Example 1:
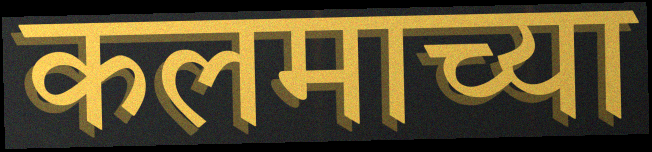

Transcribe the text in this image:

कलमाच्या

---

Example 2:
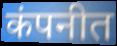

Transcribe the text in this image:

कंपनीत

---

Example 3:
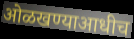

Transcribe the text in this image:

ओळखण्याआधीच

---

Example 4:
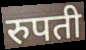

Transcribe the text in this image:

रुपती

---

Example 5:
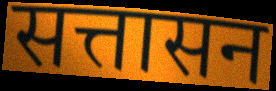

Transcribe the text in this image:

सत्तासन